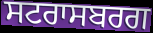
ਸਟਰਾਸਬਰਗ